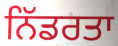
ਨਿੱਡਰਤਾ